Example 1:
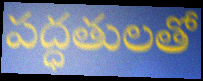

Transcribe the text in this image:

పద్ధతులతో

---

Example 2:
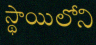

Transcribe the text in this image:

స్థాయిలోని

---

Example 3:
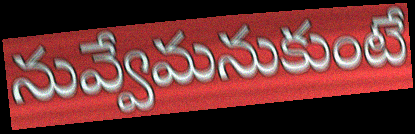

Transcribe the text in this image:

నువ్వేమనుకుంటే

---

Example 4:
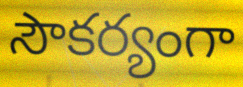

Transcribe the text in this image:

సౌకర్యంగా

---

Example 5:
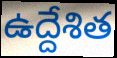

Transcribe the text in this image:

ఉద్దేశిత